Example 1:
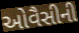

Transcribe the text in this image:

ઓવૈસીની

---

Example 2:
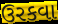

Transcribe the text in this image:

ઉરકવા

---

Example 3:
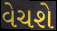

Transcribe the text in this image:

વેચશે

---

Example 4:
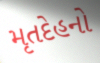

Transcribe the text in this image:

મૃતદેહનો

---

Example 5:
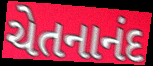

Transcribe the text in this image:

ચેતનાનંદ